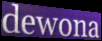
dewona